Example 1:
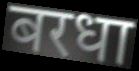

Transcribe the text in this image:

बरधा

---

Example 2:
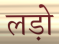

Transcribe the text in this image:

लड़ो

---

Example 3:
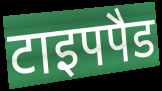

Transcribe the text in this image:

टाइपपैड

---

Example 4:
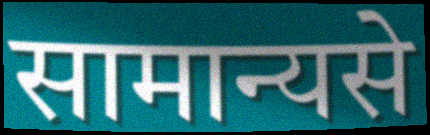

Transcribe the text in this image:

सामान्यसे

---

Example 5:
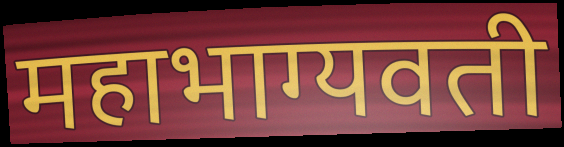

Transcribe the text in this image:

महाभाग्यवती